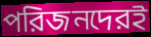
পরিজনদেরই